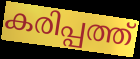
കരിപ്പത്ത്